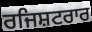
ਰਜਿਸ਼ਟਰਾਰ